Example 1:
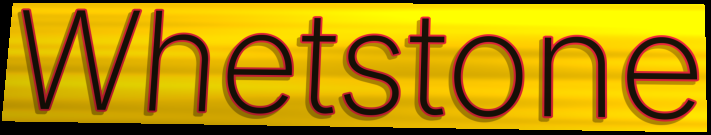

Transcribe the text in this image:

Whetstone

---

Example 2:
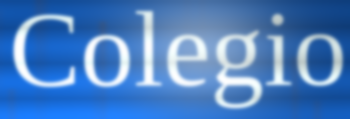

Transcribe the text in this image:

Colegio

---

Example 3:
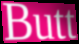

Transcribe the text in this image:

Butt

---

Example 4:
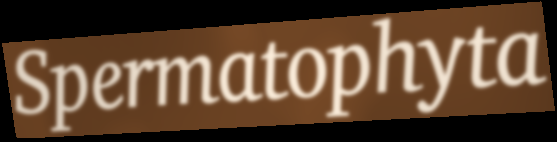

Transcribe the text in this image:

Spermatophyta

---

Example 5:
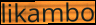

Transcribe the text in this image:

likambo